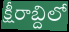
క్షీరాబ్దిలో